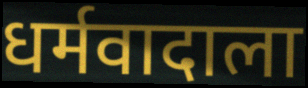
धर्मवादाला